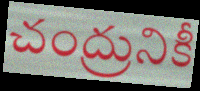
చంద్రునికీ